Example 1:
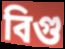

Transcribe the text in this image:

বিগু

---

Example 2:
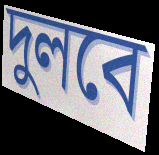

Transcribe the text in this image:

দুলবে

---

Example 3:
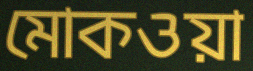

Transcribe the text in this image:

মোকওয়া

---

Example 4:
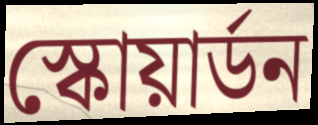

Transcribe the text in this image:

স্কোয়ার্ডন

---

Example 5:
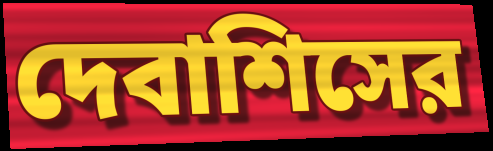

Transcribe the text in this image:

দেবাশিসের